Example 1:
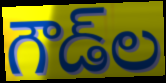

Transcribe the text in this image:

గౌడ్‌ల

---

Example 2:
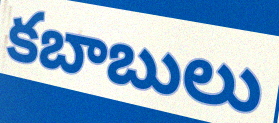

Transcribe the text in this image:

కబాబులు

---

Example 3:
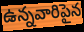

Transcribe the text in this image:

ఉన్నవారిపైన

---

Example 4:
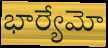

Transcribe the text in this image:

భార్యేమో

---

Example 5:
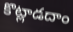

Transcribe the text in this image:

కొట్లాడదాం